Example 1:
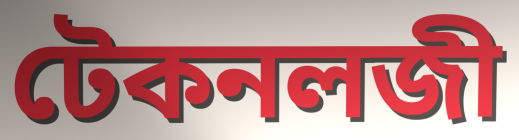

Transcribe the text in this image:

টেকনলজী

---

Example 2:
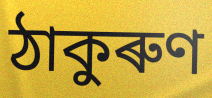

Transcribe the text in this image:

ঠাকুৰুণ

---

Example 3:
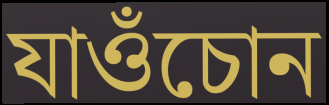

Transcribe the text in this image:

যাওঁচোন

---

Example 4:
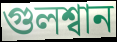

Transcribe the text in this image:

গুলশ্বান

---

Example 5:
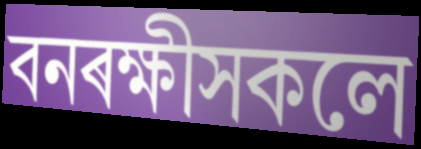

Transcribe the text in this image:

বনৰক্ষীসকলে